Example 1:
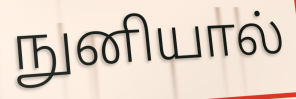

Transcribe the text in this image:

நுனியால்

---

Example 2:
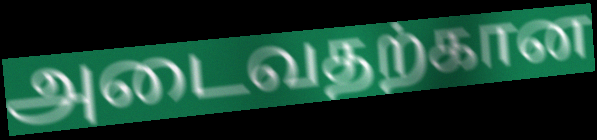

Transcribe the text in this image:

அடைவதற்கான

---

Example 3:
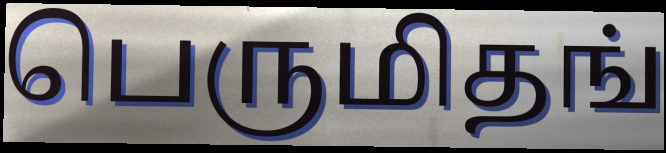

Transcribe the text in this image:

பெருமிதங்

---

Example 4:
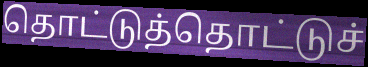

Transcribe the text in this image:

தொட்டுத்தொட்டுச்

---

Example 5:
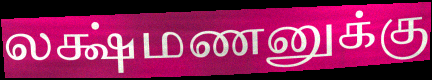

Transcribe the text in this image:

லக்ஷ்மணனுக்கு